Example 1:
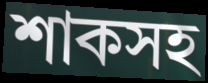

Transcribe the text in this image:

শাকসহ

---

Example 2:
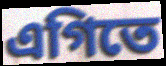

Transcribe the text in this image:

এগিতে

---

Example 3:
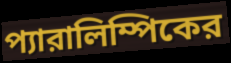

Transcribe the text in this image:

প্যারালিম্পিকের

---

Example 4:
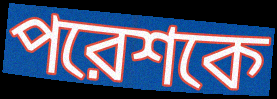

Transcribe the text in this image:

পরেশকে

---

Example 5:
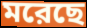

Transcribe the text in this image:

মরেছে